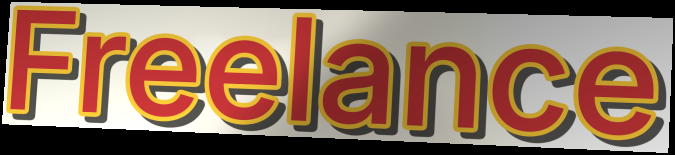
Freelance